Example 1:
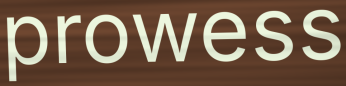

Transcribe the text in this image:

prowess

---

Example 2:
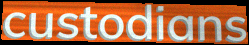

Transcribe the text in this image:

custodians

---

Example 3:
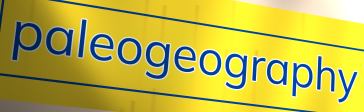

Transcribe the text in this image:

paleogeography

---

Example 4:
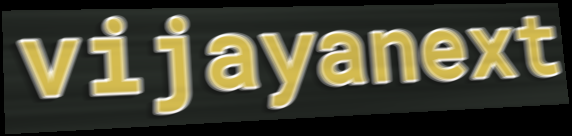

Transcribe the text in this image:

vijayanext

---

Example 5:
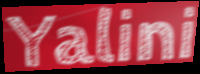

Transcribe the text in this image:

Yalini